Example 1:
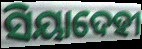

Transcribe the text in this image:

ସିୟାଦେହୀ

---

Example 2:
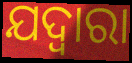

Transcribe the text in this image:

ଯଦ୍ୱାରା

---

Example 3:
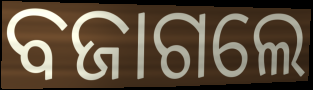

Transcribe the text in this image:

ବଜାଗଲେ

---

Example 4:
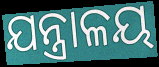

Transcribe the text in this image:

ଯନ୍ତ୍ରାଳୟ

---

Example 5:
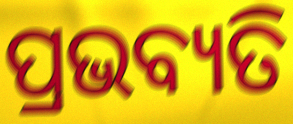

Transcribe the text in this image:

ପ୍ରଭବ୍ୟତି